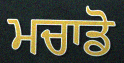
ਮਚਾਡੋ